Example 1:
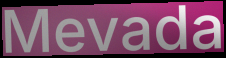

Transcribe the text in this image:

Mevada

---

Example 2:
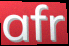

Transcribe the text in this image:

afr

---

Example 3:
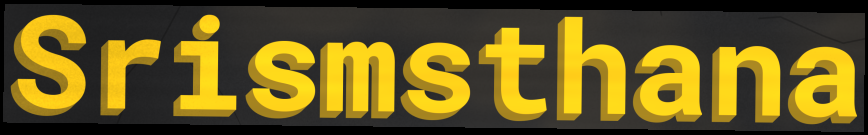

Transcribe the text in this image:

Srismsthana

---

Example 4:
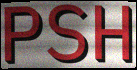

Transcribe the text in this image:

PSH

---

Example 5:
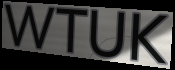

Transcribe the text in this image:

WTUK